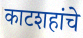
काटशहांचे